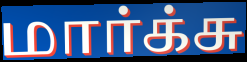
மார்க்சு